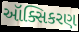
ઑક્સિકરણ